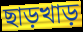
ছাড়খাড়